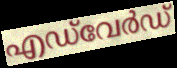
എഡ്‌വേർഡ്